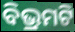
ବିଭ୍ରମଟି